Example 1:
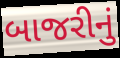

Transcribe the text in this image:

બાજરીનું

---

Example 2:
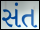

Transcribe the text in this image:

સંત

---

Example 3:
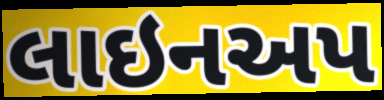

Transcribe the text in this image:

લાઇનઅપ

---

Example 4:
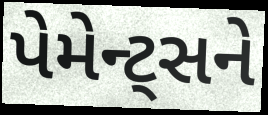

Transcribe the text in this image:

પેમેન્ટ્સને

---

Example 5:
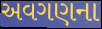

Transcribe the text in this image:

અવગણના